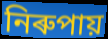
নিৰুপায়